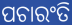
ପଚାରଂତି